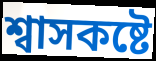
শ্বাসকষ্টে